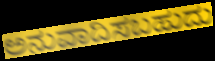
ಅನುವಾದಿಸಬಹುದು